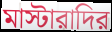
মাস্টারাদির